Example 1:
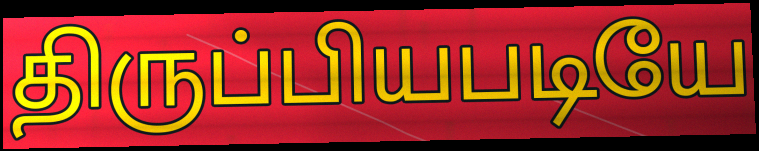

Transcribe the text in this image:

திருப்பியபடியே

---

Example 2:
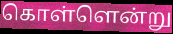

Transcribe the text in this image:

கொள்ளென்று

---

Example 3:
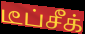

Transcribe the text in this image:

டீப்சீக்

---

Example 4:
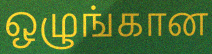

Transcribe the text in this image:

ஒழுங்கான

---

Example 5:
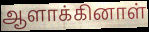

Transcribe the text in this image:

ஆளாக்கினாள்